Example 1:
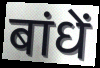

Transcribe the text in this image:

बांधें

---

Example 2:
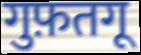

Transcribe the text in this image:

गुफ़तगू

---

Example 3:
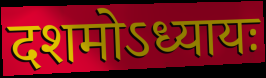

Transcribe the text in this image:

दशमोऽध्यायः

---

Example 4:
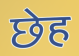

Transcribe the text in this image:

छेह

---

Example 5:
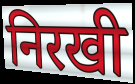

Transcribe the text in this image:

निरखी